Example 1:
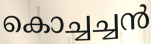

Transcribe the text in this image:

കൊച്ചച്ചൻ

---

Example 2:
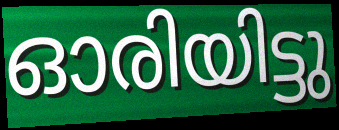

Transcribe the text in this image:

ഓരിയിട്ടു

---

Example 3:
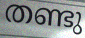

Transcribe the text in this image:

തണ്ടു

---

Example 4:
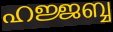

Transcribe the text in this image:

ഹജ്ജബ്ബ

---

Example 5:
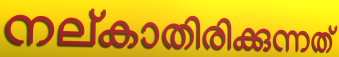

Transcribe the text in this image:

നല്കാതിരിക്കുന്നത്